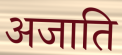
अजाति